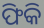
ଫିକି